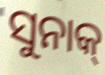
ସୁନାକ୍